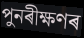
পুনৰীক্ষণৰ